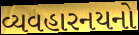
વ્યવહારનયનો